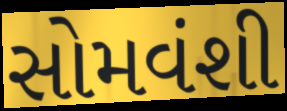
સોમવંશી